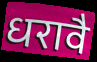
धरावै